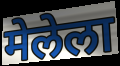
मेलेला